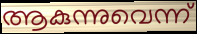
ആകുന്നുവെന്ന്